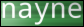
nayne